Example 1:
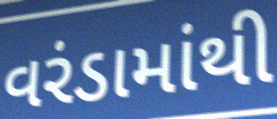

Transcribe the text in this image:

વરંડામાંથી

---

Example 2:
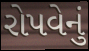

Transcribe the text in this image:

રોપવેનું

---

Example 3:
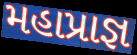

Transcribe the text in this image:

મહાપ્રાજ્ઞ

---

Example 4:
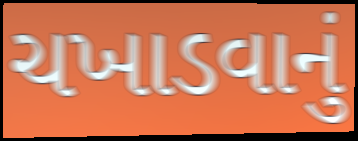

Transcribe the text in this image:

ચખાડવાનું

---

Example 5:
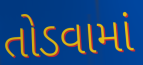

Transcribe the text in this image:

તોડવામાં